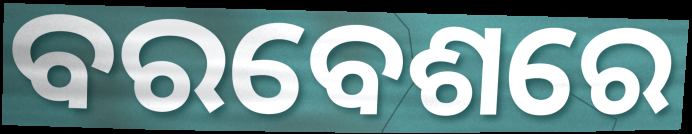
ବରବେଶରେ